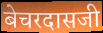
बेचरदासजी